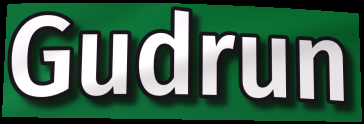
Gudrun